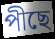
পীছে